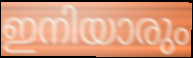
ഇനിയാരും